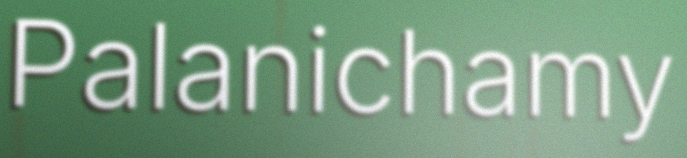
Palanichamy